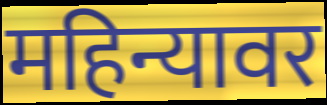
महिन्यावर